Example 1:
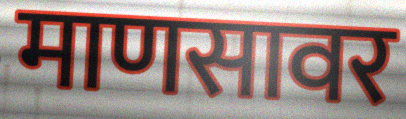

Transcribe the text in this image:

माणसावर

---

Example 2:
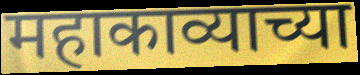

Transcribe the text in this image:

महाकाव्याच्या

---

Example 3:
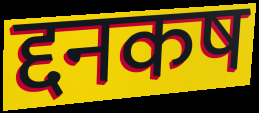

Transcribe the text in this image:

द्दनकष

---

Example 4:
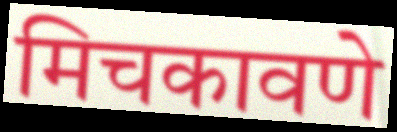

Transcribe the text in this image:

मिचकावणे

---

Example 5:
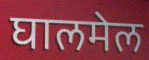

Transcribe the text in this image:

घालमेल